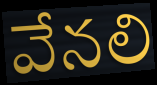
వేనలి